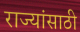
राज्यांसाठी